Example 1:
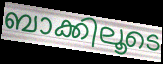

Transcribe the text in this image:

ബാക്കിലൂടെ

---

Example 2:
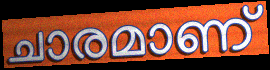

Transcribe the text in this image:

ചാരമാണ്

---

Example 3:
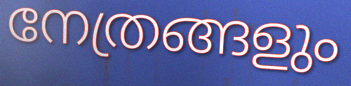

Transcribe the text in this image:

നേത്രങ്ങളും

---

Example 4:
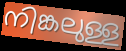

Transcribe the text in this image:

നിങ്കലുള്ള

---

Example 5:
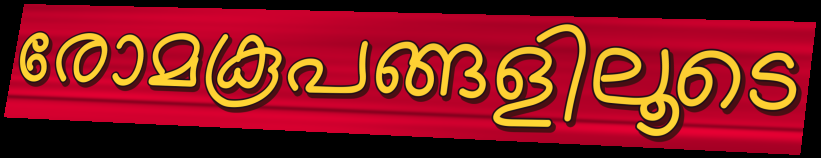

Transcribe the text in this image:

രോമകൂപങ്ങളിലൂടെ